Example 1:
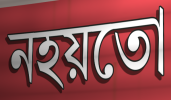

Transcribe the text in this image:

নহয়তো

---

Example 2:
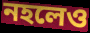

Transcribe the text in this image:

নহলেও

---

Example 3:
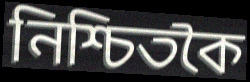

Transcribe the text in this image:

নিশ্চিতকৈ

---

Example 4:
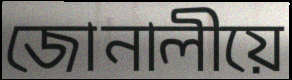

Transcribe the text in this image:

জোনালীয়ে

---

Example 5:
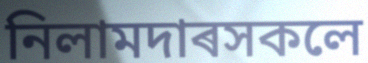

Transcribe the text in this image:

নিলামদাৰসকলে